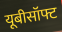
यूबीसॉफ्ट